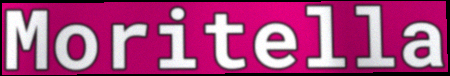
Moritella